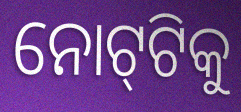
ନୋଟ୍‌ଟିକୁ